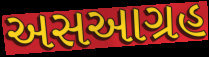
અસઆગ્રહ